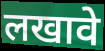
लखावे